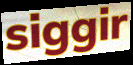
siggir